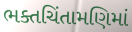
ભક્તચિંતામણિમાં